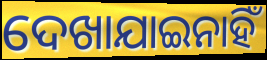
ଦେଖାଯାଇନାହିଁ